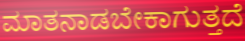
ಮಾತನಾಡಬೇಕಾಗುತ್ತದೆ